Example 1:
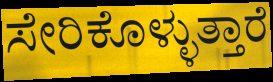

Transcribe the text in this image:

ಸೇರಿಕೊಳ್ಳುತ್ತಾರೆ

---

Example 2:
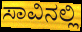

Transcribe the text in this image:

ಸಾವಿನಲ್ಲಿ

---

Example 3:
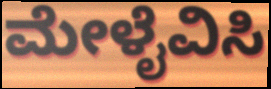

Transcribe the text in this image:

ಮೇಳೈವಿಸಿ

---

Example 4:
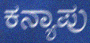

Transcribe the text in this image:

ಕನ್ಯಾಪು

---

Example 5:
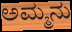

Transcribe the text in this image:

ಅಮ್ಮನು